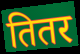
तितर